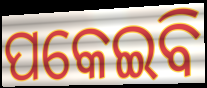
ପକେଇବି